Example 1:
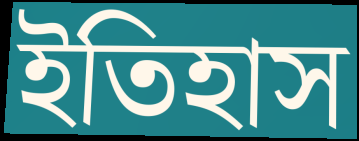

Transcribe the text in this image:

ইতিহাস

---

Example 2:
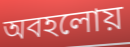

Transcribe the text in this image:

অবহলোয়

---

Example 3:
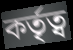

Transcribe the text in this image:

কর্তৃত্ব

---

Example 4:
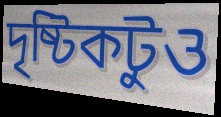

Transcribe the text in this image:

দৃষ্টিকটুও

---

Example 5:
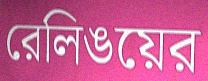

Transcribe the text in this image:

রেলিঙয়ের